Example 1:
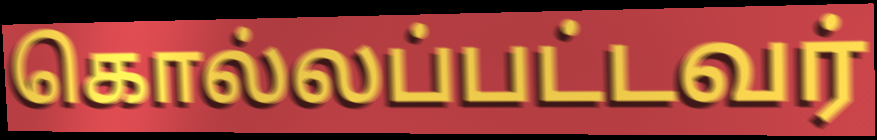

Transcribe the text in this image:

கொல்லப்பட்டவர்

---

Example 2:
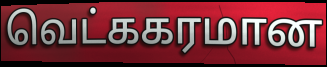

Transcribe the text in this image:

வெட்ககரமான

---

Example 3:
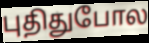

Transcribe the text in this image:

புதிதுபோல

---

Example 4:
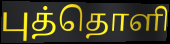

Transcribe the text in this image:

புத்தொளி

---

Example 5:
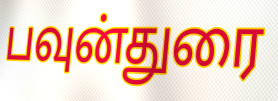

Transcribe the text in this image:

பவுன்துரை